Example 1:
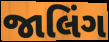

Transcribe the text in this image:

જાલિંગ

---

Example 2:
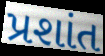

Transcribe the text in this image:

પ્રશાંત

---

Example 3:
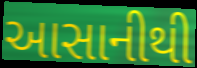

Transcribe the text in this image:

આસાનીથી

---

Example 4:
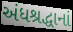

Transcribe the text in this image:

અંધશ્રદ્ધાનાં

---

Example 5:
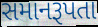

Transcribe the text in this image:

સમાનરૂપતા